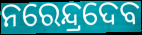
ନରେନ୍ଦ୍ରଦେବ